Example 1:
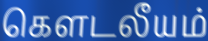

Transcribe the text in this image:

கெளடலீயம்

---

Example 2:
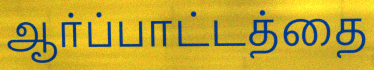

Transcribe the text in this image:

ஆர்ப்பாட்டத்தை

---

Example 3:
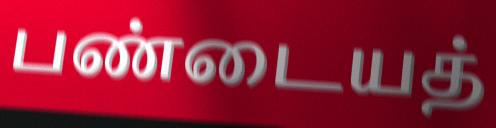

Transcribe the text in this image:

பண்டையத்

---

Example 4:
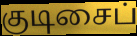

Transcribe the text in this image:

குடிசைப்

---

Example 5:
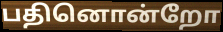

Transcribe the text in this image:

பதினொன்றோ